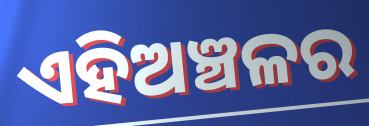
ଏହିଅଞ୍ଚଳର